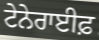
ਟੇਨੇਰਾਈਫ਼